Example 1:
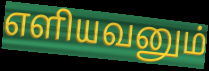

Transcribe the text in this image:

எளியவனும்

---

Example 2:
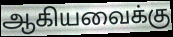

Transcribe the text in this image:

ஆகியவைக்கு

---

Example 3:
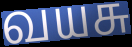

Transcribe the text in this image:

வயசு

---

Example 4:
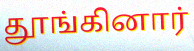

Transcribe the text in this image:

தூங்கினார்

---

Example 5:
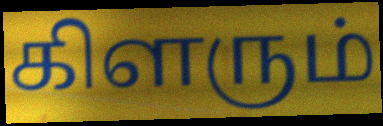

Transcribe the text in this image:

கிளரும்